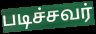
படிச்சவர்